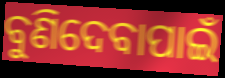
ବୁଣିଦେବାପାଇଁ